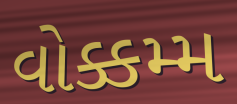
વોક્કમ્મ